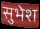
सुभेश